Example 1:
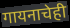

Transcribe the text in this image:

गायनाचेही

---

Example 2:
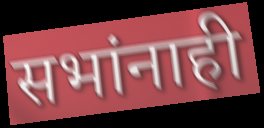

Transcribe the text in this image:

सभांनाही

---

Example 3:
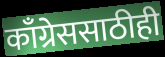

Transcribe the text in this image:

काँग्रेससाठीही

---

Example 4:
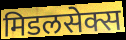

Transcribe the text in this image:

मिडलसेक्स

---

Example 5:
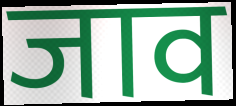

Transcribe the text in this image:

जाव